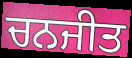
ਚਨਜੀਤ